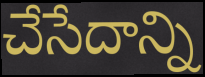
చేసేదాన్ని